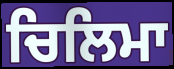
ਚਿਲਿਮਾ